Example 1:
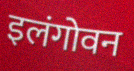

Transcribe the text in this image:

इलंगोवन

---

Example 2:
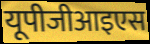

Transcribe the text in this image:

यूपीजीआइएस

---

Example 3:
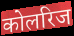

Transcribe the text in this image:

कोलरिज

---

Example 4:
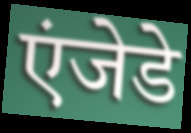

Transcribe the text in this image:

एंजेडे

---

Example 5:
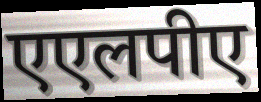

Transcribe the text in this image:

एएलपीए